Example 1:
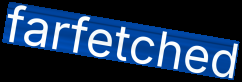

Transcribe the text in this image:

farfetched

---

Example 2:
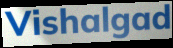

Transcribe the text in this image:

Vishalgad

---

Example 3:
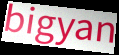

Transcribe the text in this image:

bigyan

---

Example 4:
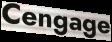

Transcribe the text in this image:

Cengage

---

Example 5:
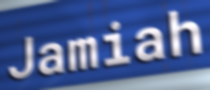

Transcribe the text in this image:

Jamiah